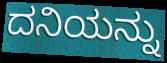
ದನಿಯನ್ನು